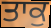
ਤਾਕੁ